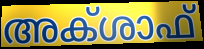
അക്ശാഫ്